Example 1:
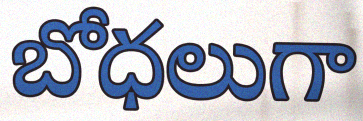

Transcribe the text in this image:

బోధలుగా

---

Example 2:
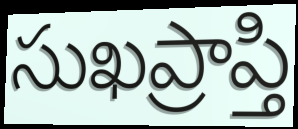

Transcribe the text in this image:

సుఖప్రాప్తి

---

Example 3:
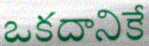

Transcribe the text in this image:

ఒకదానికే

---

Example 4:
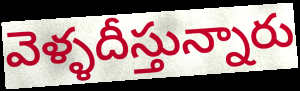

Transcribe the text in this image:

వెళ్ళదీస్తున్నారు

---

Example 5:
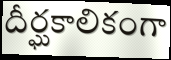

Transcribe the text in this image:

దీర్ఘకాలికంగా